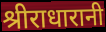
श्रीराधारानी